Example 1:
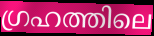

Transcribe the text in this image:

ഗ്രഹത്തിലെ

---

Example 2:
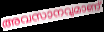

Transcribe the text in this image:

അവസാനവുമാണ്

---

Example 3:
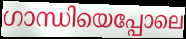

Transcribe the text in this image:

ഗാന്ധിയെപ്പോലെ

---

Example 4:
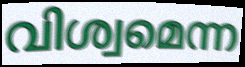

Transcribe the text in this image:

വിശ്വമെന്ന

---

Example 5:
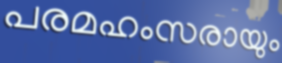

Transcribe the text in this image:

പരമഹംസരായും